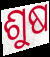
ଶୁଷ